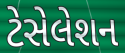
ટેસેલેશન